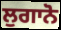
ਲੁਗਾਨੋ